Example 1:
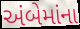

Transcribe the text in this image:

અંબેમાંના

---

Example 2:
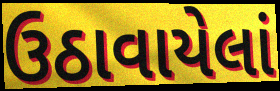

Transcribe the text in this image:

ઉઠાવાયેલાં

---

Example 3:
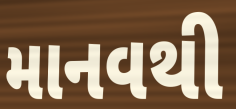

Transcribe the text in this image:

માનવથી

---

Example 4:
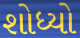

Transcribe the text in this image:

શોધ્યો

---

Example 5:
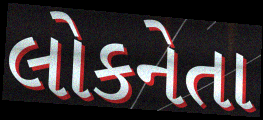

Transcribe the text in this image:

લોકનેતા